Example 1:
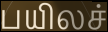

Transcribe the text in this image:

பயிலச்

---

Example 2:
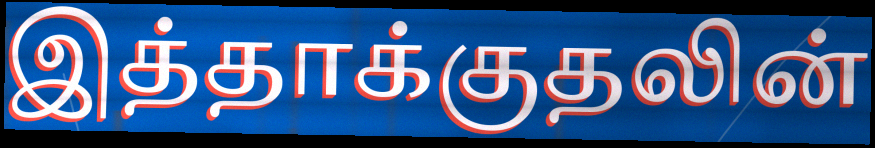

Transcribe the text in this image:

இத்தாக்குதலின்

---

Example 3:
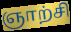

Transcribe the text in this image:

ஞாற்சி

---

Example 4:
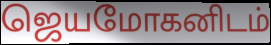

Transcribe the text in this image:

ஜெயமோகனிடம்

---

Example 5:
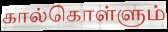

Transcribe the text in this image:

கால்கொள்ளும்